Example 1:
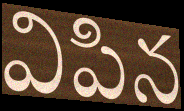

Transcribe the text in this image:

విపిన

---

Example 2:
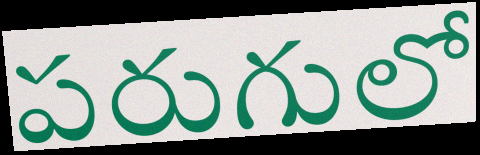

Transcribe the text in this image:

పరుగులో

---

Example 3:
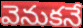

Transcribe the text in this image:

వెనుకనే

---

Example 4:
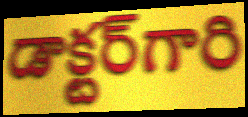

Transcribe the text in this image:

డాక్టర్‌గారి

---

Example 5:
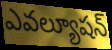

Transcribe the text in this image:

ఎవల్యూషన్